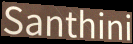
Santhini